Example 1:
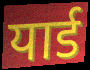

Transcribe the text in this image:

यार्ड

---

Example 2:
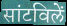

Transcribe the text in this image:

सांटविलें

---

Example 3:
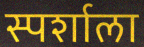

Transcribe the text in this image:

स्पर्शाला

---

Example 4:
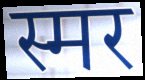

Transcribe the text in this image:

स्मर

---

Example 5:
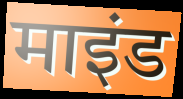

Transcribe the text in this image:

माइंड